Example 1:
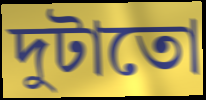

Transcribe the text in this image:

দুটাতো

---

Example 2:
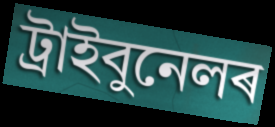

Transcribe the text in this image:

ট্ৰাইবুনেলৰ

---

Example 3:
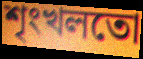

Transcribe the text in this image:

শৃংখলতো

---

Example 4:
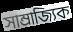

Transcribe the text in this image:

সাম্ৰাজ্যিক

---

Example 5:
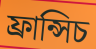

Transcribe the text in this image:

ফ্ৰান্সিচ